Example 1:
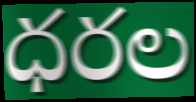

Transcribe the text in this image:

ధరల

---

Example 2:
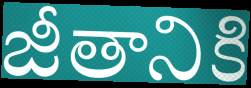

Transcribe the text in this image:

జీతానికి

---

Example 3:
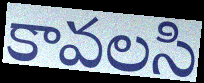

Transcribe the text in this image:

కావలసి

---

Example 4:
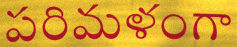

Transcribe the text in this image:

పరిమళంగా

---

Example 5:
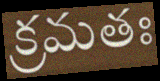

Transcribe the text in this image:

క్రమతః